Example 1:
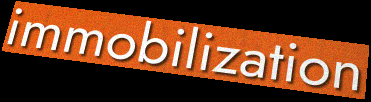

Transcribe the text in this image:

immobilization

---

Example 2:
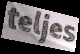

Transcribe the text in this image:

teljes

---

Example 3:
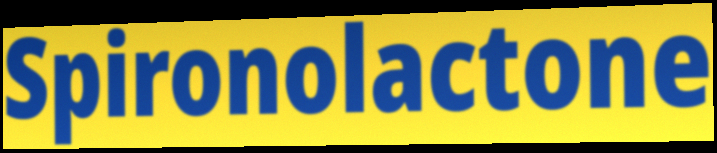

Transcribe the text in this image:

Spironolactone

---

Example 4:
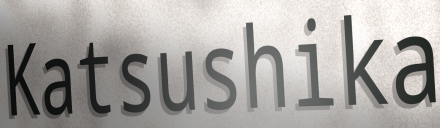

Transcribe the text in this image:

Katsushika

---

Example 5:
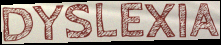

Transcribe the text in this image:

DYSLEXIA